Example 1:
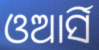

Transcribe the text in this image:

ଓଆର୍ସି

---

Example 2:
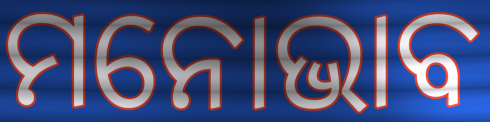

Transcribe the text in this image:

ମନୋଭାବ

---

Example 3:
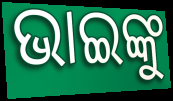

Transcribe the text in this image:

ଭାଇଙ୍କୁ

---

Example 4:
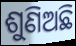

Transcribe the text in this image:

ଶୁଣିଅଛି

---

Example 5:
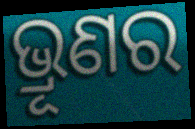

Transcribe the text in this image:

ଭ୍ରୂଣର